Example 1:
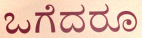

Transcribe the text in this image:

ಒಗೆದರೂ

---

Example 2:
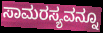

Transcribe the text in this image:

ಸಾಮರಸ್ಯವನ್ನೂ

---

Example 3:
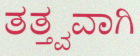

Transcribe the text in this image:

ತತ್ತ್ವವಾಗಿ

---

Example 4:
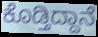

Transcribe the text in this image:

ಕೊಡ್ತಿದ್ದಾನೆ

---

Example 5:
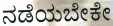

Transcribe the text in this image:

ನಡೆಯಬೇಕೇ